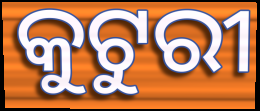
କୁଟୁରୀ